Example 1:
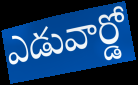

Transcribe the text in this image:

ఎడువార్డో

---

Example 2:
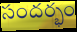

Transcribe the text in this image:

సందర్భం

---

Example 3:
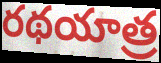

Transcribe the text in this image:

రథయాత్ర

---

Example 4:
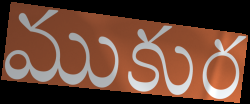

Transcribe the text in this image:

ముకుర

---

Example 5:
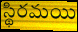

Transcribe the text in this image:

స్థిరమయి